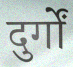
दुर्गों